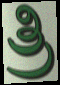
ತ್ರಿ